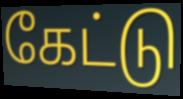
கேட்டு